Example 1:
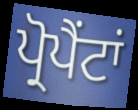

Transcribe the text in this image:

ਪ੍ਰੋਪੈਂਟਾਂ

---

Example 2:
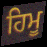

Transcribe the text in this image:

ਹਿਮੂ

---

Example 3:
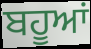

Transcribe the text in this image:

ਬਹੂਆਂ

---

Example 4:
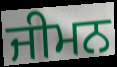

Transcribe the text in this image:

ਜੀਮਨ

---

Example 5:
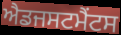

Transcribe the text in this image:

ਐਡਜਸਟਮੈਂਟਸ